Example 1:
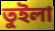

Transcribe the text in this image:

তুইলা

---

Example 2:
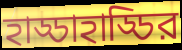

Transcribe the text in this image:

হাড্ডাহাড্ডির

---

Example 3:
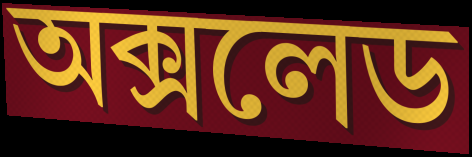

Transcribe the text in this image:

অক্সলেড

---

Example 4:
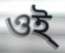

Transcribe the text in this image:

ওই্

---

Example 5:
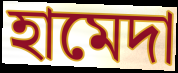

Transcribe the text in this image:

হামেদা